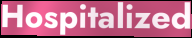
Hospitalized